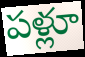
పళ్లూ